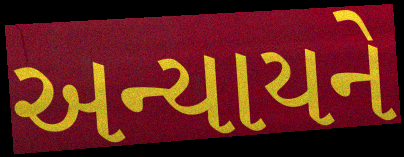
અન્યાયને